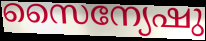
സൈന്യേഷു